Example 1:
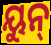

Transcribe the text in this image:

ୟୁନ୍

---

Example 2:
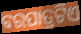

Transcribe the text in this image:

ବରପାତ୍ରଟିଏ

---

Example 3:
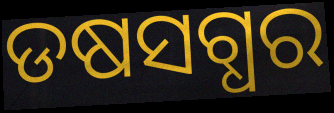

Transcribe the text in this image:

ଡଷସଗ୍ଧର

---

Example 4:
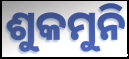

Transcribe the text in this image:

ଶୁକମୁନି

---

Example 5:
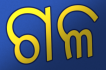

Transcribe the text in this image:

ଗଳ